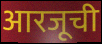
आरजूची